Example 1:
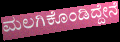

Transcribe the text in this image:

ಮಲಗಿಕೊಂಡಿದ್ದೇನೆ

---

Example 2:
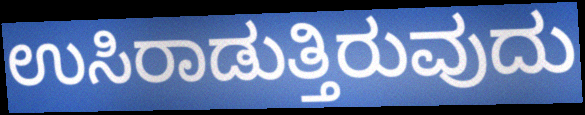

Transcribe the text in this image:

ಉಸಿರಾಡುತ್ತಿರುವುದು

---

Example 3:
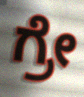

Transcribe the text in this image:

ಗ್ರೇ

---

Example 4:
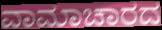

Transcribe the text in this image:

ವಾಮಾಚಾರದ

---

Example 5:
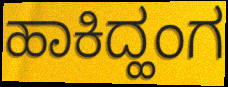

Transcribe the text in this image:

ಹಾಕಿದ್ಹಂಗ